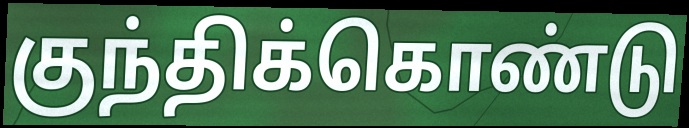
குந்திக்கொண்டு